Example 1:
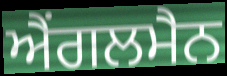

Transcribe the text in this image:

ਐਂਗਲਮੈਨ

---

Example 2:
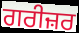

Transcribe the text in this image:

ਗਰੀਜ਼ਰ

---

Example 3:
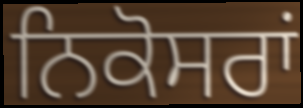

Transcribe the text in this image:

ਨਿਕੋਸਰਾਂ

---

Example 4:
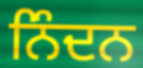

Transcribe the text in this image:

ਨਿੰਦਨ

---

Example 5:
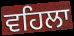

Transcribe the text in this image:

ਵਹਿਲਾ